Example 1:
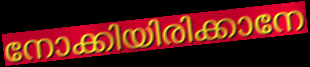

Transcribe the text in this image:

നോക്കിയിരിക്കാനേ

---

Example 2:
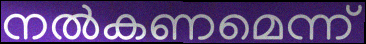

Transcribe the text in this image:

നൽകണമെന്ന്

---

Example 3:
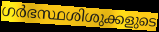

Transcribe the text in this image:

ഗർഭസ്ഥശിശുക്കളുടെ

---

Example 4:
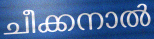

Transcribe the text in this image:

ചീക്കനാൽ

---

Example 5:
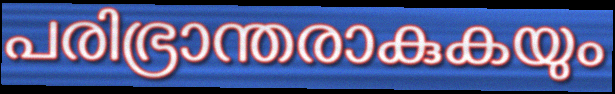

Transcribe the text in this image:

പരിഭ്രാന്തരാകുകയും